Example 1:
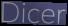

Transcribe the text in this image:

Dicer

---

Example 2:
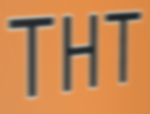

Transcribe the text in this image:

THT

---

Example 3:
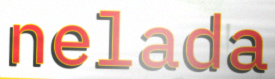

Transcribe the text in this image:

nelada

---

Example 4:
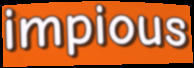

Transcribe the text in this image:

impious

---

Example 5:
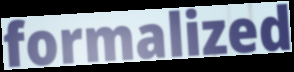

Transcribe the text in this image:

formalized